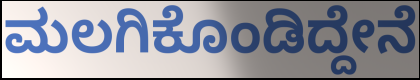
ಮಲಗಿಕೊಂಡಿದ್ದೇನೆ